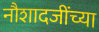
नौशादजींच्या